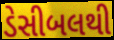
ડેસીબલથી